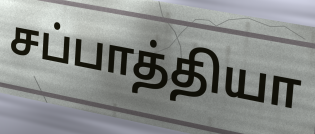
சப்பாத்தியா